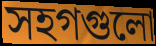
সহগগুলো